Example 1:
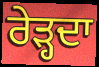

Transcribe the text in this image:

ਰੇੜ੍ਹਦਾ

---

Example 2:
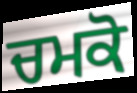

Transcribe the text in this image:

ਚਮਕੋ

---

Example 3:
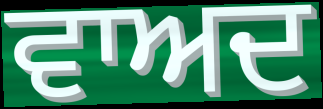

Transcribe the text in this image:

ਵਾਅਦ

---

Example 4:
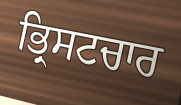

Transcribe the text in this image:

ਭ੍ਰਿਸਟਚਾਰ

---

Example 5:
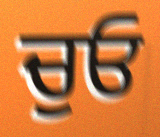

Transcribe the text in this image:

ਚੁਓ